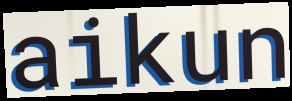
aikun